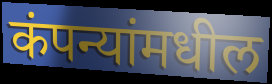
कंपन्यांमधील